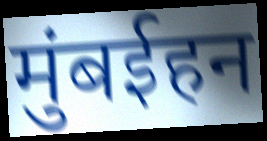
मुंबईहन